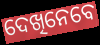
ଦେଖିନେବେ